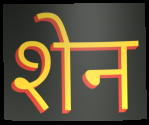
शेन